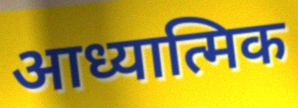
आध्यात्मिक